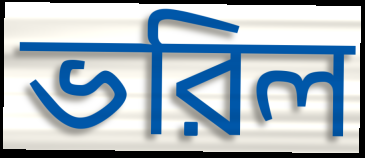
ভরিল